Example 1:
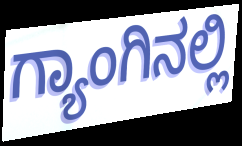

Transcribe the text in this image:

ಗ್ಯಾಂಗಿನಲ್ಲಿ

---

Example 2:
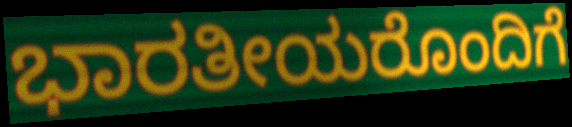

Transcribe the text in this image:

ಭಾರತೀಯರೊಂದಿಗೆ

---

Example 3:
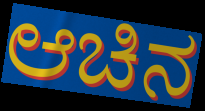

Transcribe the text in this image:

ಆಚಿನ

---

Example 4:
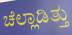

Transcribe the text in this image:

ಚೆಲ್ಲಾಡಿತ್ತು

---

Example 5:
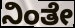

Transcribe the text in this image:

ನಿಂತೇ